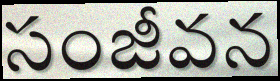
సంజీవన